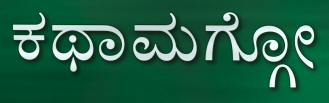
ಕಥಾಮಗ್ಗೋ